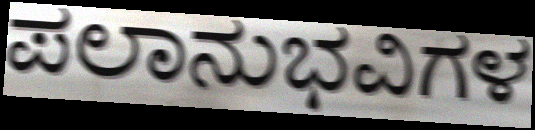
ಪಲಾನುಭವಿಗಳ